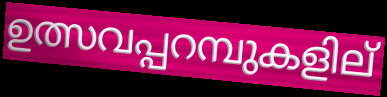
ഉത്സവപ്പറമ്പുകളില്